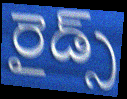
రైడ్స్